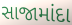
સાજામાંદા